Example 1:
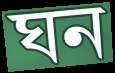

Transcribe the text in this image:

ঘন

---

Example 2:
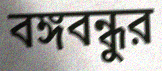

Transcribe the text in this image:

বঙ্গবন্ধুর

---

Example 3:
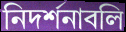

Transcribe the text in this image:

নিদর্শনাবলি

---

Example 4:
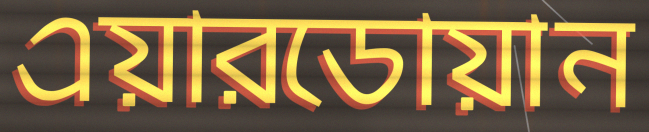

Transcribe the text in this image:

এয়ারডোয়ান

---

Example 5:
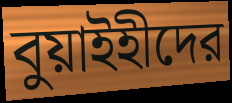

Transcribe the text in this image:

বুয়াইহীদের